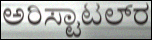
ಅರಿಸ್ಟಾಟಲ್‍ರ